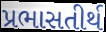
પ્રભાસતીર્થ